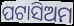
ପଟାସିଅମ